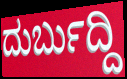
ದುರ್ಬುದ್ದಿ